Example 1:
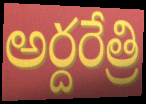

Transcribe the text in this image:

అర్దరేత్రి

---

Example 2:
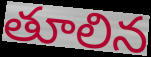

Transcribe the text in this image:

తూలిన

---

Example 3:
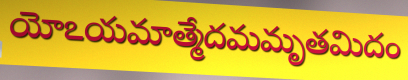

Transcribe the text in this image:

యోఽయమాత్మేదమమృతమిదం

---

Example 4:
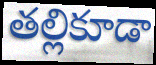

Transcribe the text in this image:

తల్లికూడా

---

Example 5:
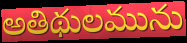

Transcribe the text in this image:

అతిథులమును